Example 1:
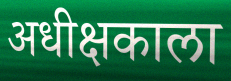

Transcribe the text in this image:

अधीक्षकाला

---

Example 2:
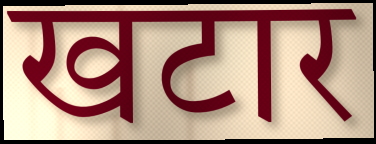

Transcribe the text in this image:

खटार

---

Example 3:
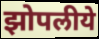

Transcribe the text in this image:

झोपलीये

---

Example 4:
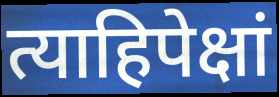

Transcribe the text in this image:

त्याहिपेक्षां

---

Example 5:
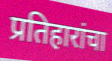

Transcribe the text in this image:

प्रतिहारांचा